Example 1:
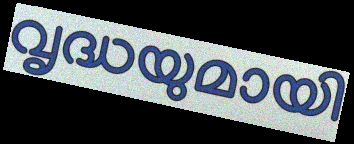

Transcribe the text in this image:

വൃദ്ധയുമായി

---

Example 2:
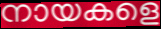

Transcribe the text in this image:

നായകളെ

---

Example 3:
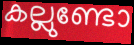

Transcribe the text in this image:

കല്ലുണ്ടോ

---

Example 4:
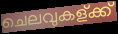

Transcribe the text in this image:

ചെലവുകള്ക്ക്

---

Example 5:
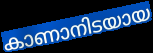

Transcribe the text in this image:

കാണാനിടയായ